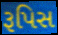
રૂપિસ